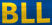
BLL